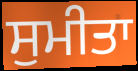
ਸੁਮੀਤਾ